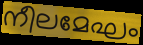
നീലമേഘം